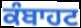
ਕੰਬਾਹਟ